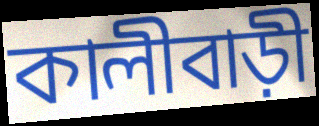
কালীবাড়ী